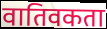
वातिवकता